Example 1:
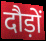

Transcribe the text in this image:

दौड़ों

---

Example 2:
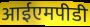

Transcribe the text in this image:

आईएमपीडी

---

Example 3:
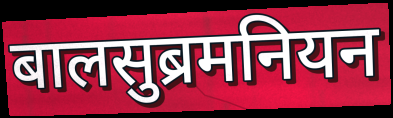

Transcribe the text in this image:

बालसुब्रमनियन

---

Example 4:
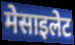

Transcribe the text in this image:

मेसाइलेट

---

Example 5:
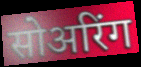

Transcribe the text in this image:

सोअरिंग